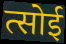
त्सोई